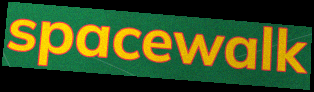
spacewalk